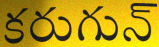
కరుగున్